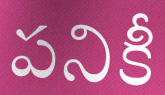
పనికీ